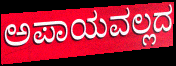
ಅಪಾಯವಲ್ಲದ